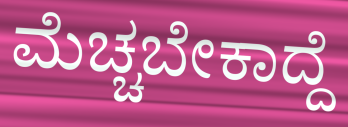
ಮೆಚ್ಚಬೇಕಾದ್ದೆ